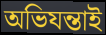
অভিযন্তাই